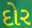
દોર